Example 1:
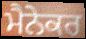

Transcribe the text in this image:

ਮੈਨੇਕਰ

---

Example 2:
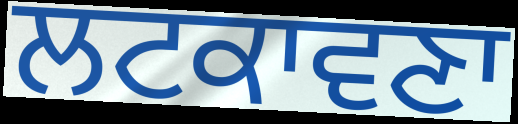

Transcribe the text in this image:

ਲਟਕਾਵਣਾ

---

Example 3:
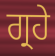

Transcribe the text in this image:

ਗ੍ਰਹੇ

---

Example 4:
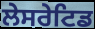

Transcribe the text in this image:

ਲੇਸਰੇਟਿਡ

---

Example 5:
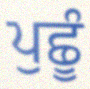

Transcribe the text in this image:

ਪੁਛੂੰ